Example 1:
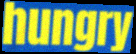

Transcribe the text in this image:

hungry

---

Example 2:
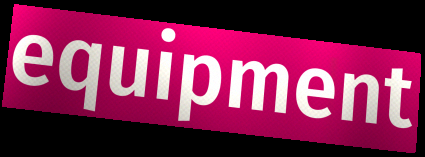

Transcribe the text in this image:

equipment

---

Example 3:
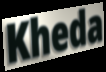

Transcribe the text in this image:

Kheda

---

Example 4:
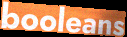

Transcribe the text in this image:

booleans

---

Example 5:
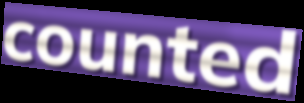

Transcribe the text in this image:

counted